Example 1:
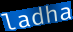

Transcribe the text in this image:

ladha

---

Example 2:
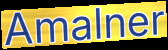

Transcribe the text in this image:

Amalner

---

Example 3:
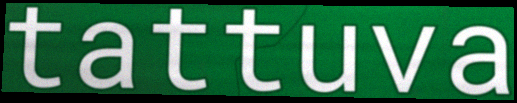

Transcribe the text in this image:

tattuva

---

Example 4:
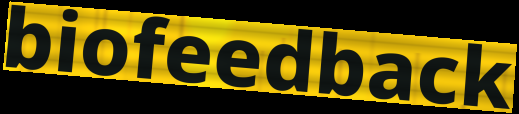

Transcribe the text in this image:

biofeedback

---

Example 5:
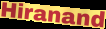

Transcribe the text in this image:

Hiranand